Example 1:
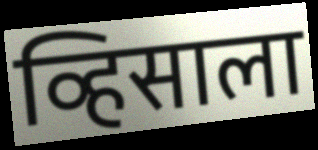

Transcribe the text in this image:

व्हिसाला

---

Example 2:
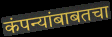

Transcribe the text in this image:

कंपन्यांबाबतचा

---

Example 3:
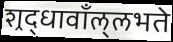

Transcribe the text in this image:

श्रद्धावाँल्लभते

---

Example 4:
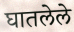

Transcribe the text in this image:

घातलेले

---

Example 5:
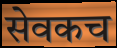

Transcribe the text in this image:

सेवकच